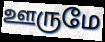
ஊருமே